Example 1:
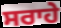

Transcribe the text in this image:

ਸਰਾਹੇ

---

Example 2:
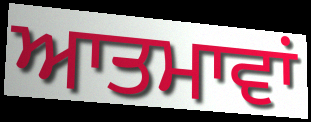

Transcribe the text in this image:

ਆਤਮਾਵਾਂ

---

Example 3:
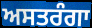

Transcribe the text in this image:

ਅਸਤਰੰਗਾ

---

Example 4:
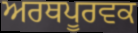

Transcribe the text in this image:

ਅਰਥਪੂਰਵਕ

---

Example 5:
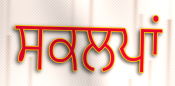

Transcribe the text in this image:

ਸਕਲਪਾਂ